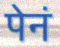
पेनं